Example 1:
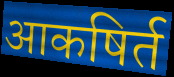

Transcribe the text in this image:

आकषिर्त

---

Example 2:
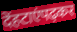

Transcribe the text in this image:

देंहटाएंपढ़कर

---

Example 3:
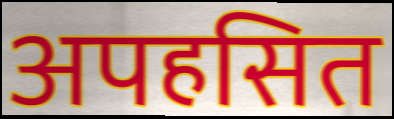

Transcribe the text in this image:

अपहसित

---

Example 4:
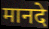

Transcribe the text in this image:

मानदे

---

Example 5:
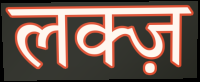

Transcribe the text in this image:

लक्ज़